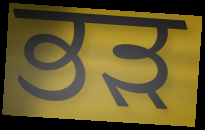
ਭੜ